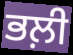
ਭਲ਼ੀ